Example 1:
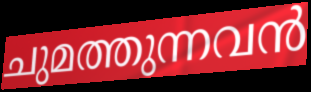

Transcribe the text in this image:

ചുമത്തുന്നവൻ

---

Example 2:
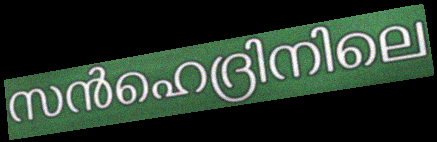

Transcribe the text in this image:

സൻഹെദ്രിനിലെ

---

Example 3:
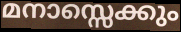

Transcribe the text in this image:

മനാസ്സെക്കും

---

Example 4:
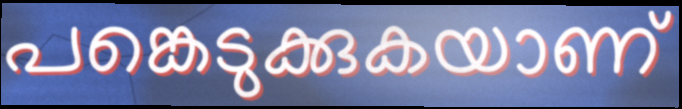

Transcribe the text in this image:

പങ്കെടുക്കുകയാണ്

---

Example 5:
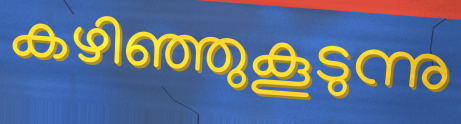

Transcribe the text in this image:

കഴിഞ്ഞുകൂടുന്നു